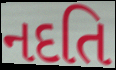
નદતિ